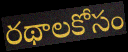
రథాలకోసం